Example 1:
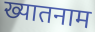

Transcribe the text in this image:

ख्यातनाम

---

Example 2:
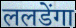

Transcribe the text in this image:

ललडेंगा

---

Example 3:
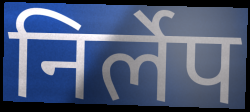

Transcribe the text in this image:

निर्लेप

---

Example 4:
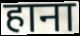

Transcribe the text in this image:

हाना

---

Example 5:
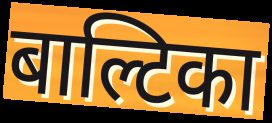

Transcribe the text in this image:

बाल्टिका